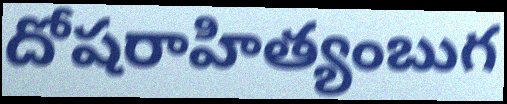
దోషరాహిత్యంబుగ